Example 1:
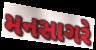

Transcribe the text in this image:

મનસાગરે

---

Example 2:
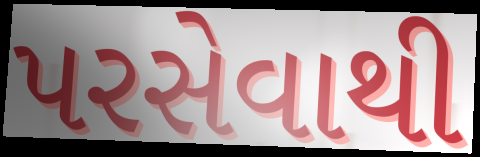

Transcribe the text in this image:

પરસેવાથી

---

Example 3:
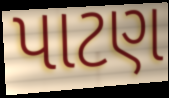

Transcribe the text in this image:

પાટણ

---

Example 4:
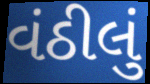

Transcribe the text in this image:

વંઠીલું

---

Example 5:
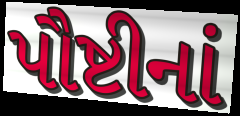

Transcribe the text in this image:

પૌષ્ટીનાં